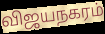
விஜயநகரம்